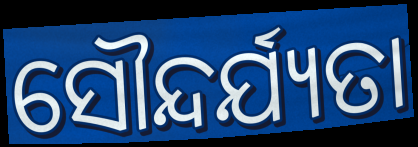
ସୌନ୍ଦର୍ଯ୍ୟତା